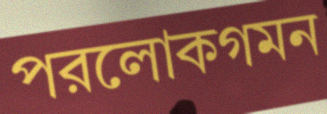
পরলোকগমন